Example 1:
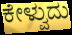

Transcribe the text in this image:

ಕೇಳ್ವುದು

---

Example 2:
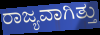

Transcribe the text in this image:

ರಾಜ್ಯವಾಗಿತ್ತು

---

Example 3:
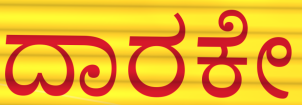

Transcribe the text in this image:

ದಾರಕೇ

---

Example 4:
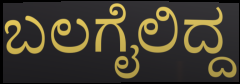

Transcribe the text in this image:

ಬಲಗೈಲಿದ್ದ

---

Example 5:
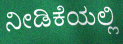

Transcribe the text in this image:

ನೀಡಿಕೆಯಲ್ಲಿ